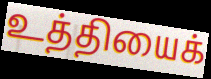
உத்தியைக்